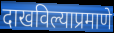
दाखविल्याप्रमाणे